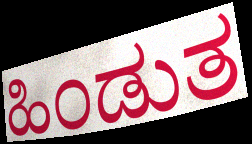
ಹಿಂಡುತ